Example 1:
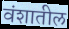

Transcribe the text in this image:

वंशातील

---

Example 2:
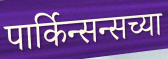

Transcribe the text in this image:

पार्किन्सन्सच्या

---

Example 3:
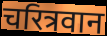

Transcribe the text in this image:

चरित्रवान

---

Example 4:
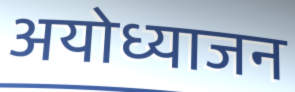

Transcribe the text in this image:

अयोध्याजन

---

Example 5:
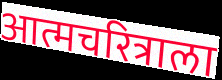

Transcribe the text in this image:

आत्मचरित्राला